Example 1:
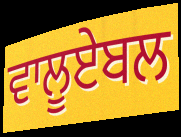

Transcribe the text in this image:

ਵਾਲੂਏਬਲ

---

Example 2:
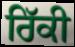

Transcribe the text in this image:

ਰਿੱਕੀ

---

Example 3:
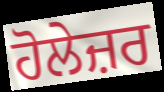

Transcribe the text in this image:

ਹੋਲੇਜ਼ਰ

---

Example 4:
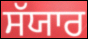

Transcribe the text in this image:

ਸੱਯਾਰ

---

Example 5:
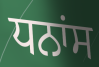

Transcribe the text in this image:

ਧਨਾਂਸ